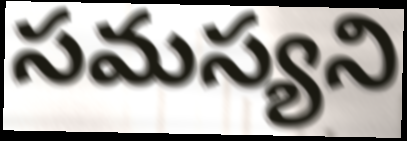
సమస్యని